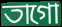
তাগো